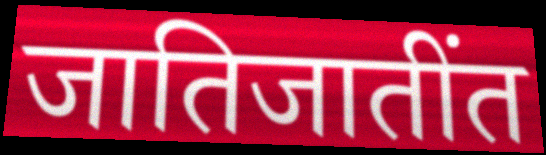
जातिजातींत